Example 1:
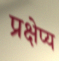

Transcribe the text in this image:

प्रक्षेप्य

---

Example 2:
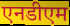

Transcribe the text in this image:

एनडीएम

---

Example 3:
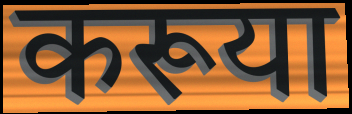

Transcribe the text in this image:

करूया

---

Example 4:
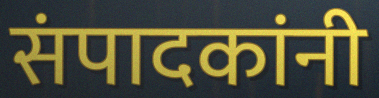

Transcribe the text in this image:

संपादकांनी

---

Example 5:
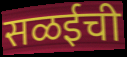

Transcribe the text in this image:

सळईची